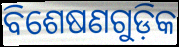
ବିଶେଷଣଗୁଡ଼ିକ